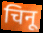
चिनू